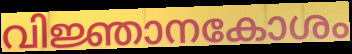
വിജ്ഞാനകോശം